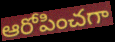
ఆరోపించగా